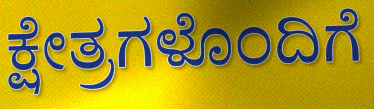
ಕ್ಷೇತ್ರಗಳೊಂದಿಗೆ